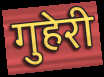
गुहेरी